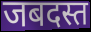
जबदस्त